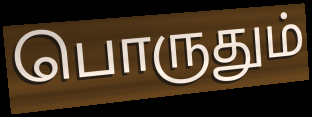
பொருதும்